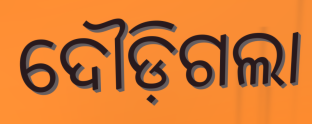
ଦୌଡ଼ିଗଲା